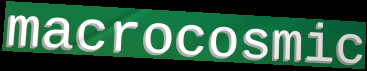
macrocosmic